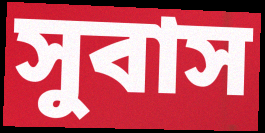
সুবাস